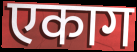
एकाग